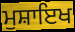
ਮੁਸ਼ਾਇਖ